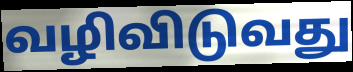
வழிவிடுவது